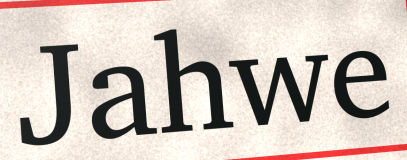
Jahwe